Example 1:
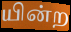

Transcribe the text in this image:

யின்ற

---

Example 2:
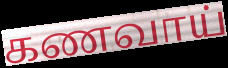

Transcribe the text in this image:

கணவாய்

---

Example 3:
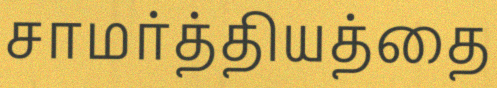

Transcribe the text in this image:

சாமர்த்தியத்தை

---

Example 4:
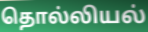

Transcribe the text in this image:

தொல்லியல்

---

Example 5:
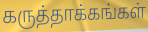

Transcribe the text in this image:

கருத்தாக்கங்கள்